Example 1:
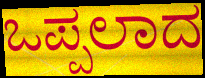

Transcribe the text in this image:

ಒಪ್ಪಲಾದ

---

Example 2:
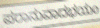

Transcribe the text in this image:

ಪರಾನುವಾದಭಯಂ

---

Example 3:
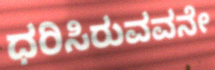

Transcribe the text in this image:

ಧರಿಸಿರುವವನೇ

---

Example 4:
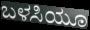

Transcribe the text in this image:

ಬಳಸಿಯೂ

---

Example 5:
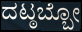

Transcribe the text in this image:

ದಟ್ಠಬ್ಬೋ